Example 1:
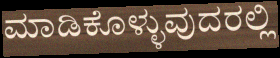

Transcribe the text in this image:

ಮಾಡಿಕೊಳ್ಳುವುದರಲ್ಲಿ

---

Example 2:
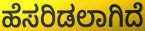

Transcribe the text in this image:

ಹೆಸರಿಡಲಾಗಿದೆ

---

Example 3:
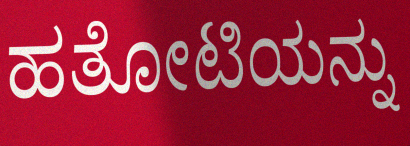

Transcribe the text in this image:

ಹತೋಟಿಯನ್ನು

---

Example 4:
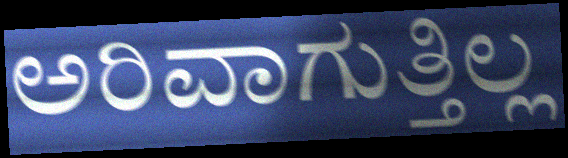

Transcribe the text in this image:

ಅರಿವಾಗುತ್ತಿಲ್ಲ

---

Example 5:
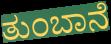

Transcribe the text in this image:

ತುಂಬಾನೆ